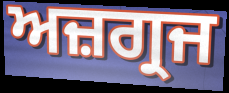
ਅਜ਼ਗ੍ਰਜ